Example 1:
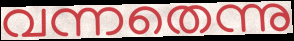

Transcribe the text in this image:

വന്നതെന്നു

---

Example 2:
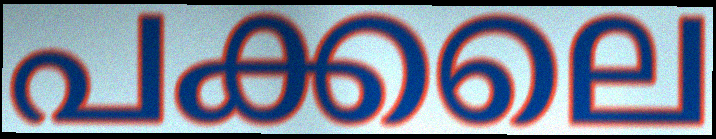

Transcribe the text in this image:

പക്കലെ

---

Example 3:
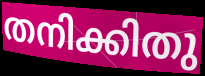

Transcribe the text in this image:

തനിക്കിതു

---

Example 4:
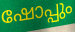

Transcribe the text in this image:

ഷോപ്പും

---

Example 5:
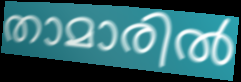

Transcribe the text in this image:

താമാരിൽ